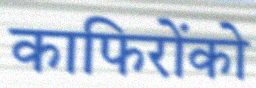
काफिरोंको